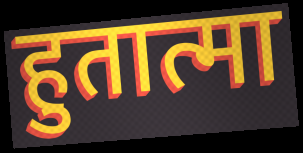
हुतात्मा